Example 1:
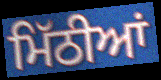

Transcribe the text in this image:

ਮਿੱਠੀਆਂ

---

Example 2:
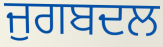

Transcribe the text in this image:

ਜੁਗਬਦਲ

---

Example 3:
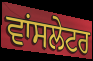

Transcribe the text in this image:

ਵਾਂਸਲੇਟਰ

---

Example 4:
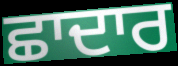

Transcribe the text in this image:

ਛਾਦਾਰ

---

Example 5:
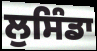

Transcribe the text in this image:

ਲੁਸਿੰਡਾ